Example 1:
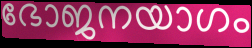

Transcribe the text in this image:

ഭോജനയാഗം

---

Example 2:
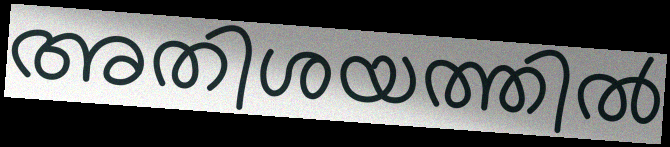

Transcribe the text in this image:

അതിശയത്തിൽ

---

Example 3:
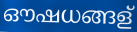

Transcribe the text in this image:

ഔഷധങ്ങള്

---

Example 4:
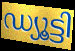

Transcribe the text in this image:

ഡ്യൂട്ടി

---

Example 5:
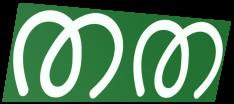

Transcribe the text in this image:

തത